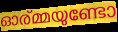
ഓര്മ്മയുണ്ടോ